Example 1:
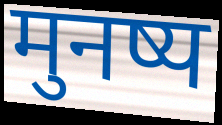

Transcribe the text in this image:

मुनष्य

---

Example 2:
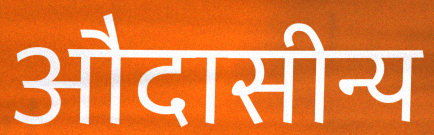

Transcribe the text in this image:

औदासीन्य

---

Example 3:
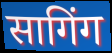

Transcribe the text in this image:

सागिंग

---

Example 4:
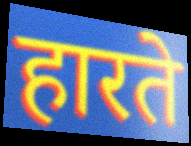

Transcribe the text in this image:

हारते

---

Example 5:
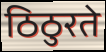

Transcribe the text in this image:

ठिठुरते